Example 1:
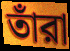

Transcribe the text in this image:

তাঁরা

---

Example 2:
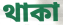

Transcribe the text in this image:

থাকা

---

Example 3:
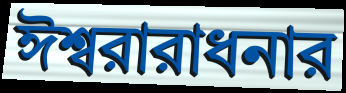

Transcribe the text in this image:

ঈশ্বরারাধনার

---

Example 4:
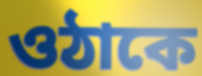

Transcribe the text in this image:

ওঠাকে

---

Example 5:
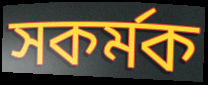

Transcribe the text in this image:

সকর্মক